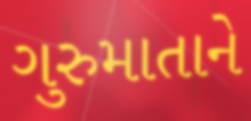
ગુરુમાતાને